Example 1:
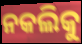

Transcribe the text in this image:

ନକଲିକୁ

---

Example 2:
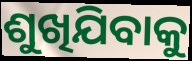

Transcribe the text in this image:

ଶୁଖିଯିବାକୁ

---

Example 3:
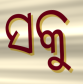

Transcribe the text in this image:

ସକୁ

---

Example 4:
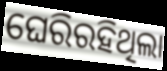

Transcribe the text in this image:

ଘେରିରହିଥିଲା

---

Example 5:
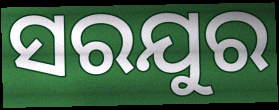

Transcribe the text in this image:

ସରଯୁର